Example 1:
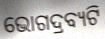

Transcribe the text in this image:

ଭୋଗଦ୍ରବ୍ୟଟି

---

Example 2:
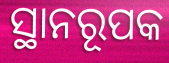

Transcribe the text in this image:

ସ୍ଥାନରୂପକ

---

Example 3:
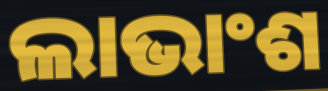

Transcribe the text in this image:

ଲାଭାଂଶ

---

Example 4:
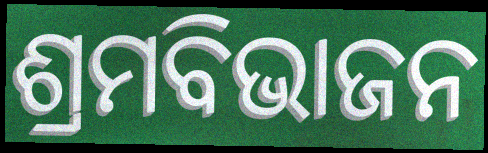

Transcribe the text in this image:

ଶ୍ରମବିଭାଜନ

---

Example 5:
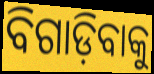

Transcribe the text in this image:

ବିଗାଡ଼ିବାକୁ